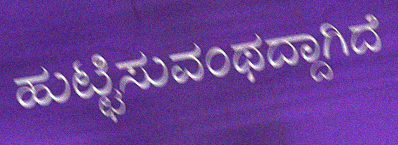
ಹುಟ್ಟಿಸುವಂಥದ್ದಾಗಿದೆ